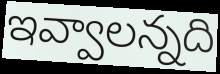
ఇవ్వాలన్నది